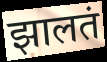
झालतं